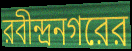
রবীন্দ্রনগরের